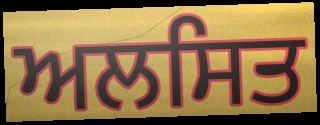
ਅਲਸਿਤ